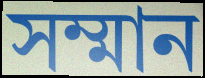
সম্মান